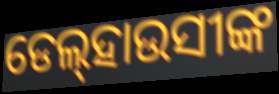
ଡେଲ୍‌ହାଉସୀଙ୍କ